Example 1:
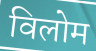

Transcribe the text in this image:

विलोम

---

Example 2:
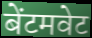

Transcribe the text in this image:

बेंटमवेट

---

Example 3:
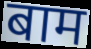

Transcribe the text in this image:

बाम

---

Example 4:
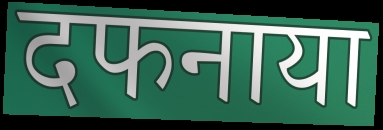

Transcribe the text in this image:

दफनाया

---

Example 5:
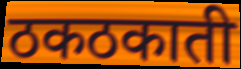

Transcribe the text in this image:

ठकठकाती